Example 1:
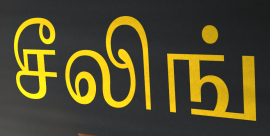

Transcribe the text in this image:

சீலிங்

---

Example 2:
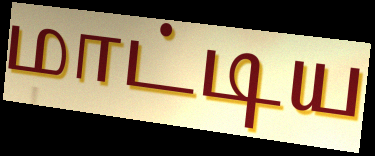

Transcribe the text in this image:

மாட்டிய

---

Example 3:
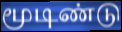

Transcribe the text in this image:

மூடிண்டு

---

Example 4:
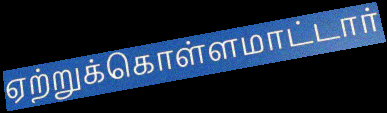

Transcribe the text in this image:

ஏற்றுக்கொள்ளமாட்டார்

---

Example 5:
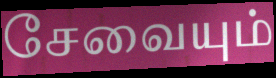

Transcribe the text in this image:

சேவையும்